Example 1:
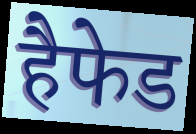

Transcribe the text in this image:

हैफेड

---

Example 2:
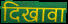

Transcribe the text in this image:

दिखावा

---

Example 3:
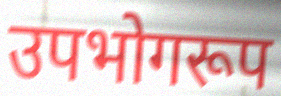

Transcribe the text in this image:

उपभोगरूप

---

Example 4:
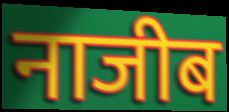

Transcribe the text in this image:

नाजीब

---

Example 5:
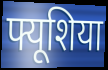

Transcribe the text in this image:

फ्यूशिया